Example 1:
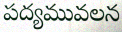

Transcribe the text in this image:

పద్యమువలన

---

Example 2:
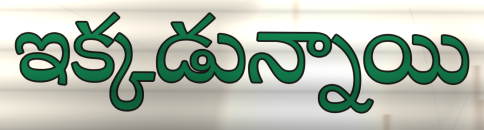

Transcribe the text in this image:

ఇక్కడున్నాయి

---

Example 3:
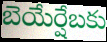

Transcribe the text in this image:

బెయేర్షేబకు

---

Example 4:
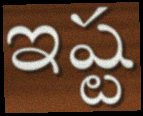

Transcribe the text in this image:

ఇష్ట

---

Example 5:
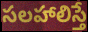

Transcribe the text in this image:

సలహాలిస్తే